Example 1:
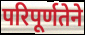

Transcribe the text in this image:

परिपूर्णतेने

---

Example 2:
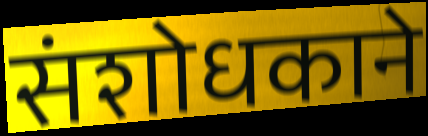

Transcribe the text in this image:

संशोधकाने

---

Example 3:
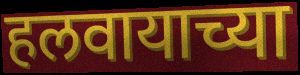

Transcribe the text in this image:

हलवायाच्या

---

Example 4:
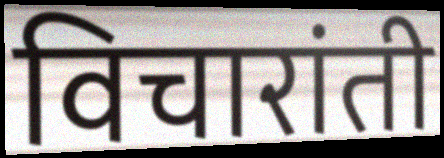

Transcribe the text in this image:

विचारांती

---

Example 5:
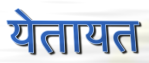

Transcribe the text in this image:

येतायत